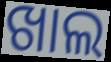
ଖାଲ